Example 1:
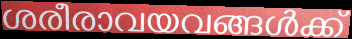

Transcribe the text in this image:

ശരീരാവയവങ്ങൾക്ക്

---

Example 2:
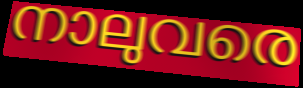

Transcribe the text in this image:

നാലുവരെ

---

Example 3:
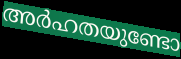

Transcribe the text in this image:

അർഹതയുണ്ടോ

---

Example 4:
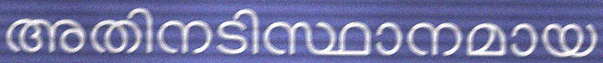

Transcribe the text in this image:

അതിനടിസ്ഥാനമായ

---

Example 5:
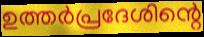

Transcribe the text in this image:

ഉത്തർപ്രദേശിന്റെ